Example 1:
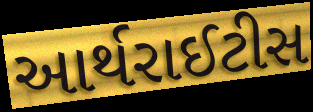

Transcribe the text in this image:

આર્થરાઈટીસ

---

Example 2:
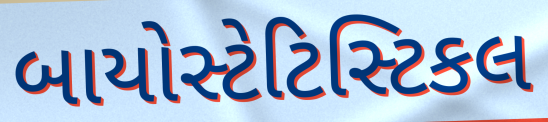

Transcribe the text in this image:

બાયોસ્ટેટિસ્ટિકલ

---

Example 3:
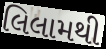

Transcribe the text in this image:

લિલામથી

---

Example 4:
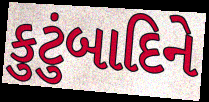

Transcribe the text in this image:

કુટુંબાદિને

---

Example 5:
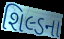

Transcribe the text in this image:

શિલ્ડના